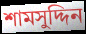
শামসুদ্দিন